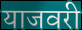
याजवरी